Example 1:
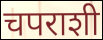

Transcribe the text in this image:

चपराशी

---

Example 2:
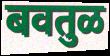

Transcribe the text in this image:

बवतुळ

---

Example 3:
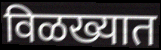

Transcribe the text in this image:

विळख्यात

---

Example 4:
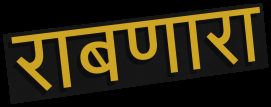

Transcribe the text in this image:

राबणारा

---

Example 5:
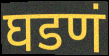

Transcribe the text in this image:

घडणं